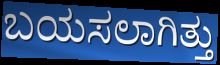
ಬಯಸಲಾಗಿತ್ತು